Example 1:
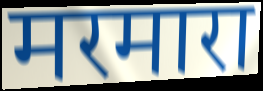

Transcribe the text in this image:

मरमारा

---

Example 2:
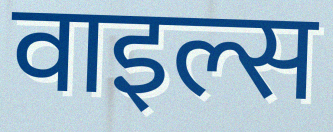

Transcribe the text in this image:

वाइल्स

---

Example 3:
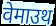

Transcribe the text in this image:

वेमाउथ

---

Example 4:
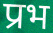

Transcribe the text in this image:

प्रभ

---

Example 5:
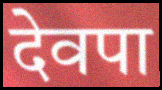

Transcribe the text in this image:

देवपा